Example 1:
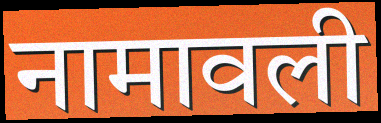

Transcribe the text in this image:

नामावली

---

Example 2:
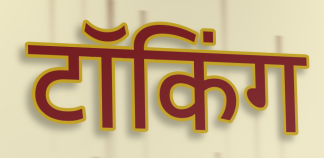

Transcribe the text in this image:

टॉकिंग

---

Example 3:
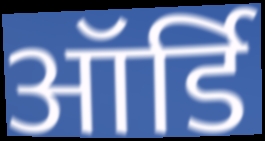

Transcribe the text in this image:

ऑर्डि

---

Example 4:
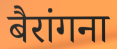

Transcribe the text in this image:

बैरांगना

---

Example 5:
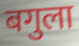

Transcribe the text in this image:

बगुला